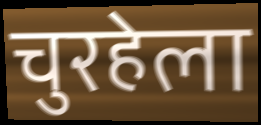
चुरहेला